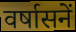
वर्षासनें